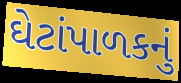
ઘેટાંપાળકનું